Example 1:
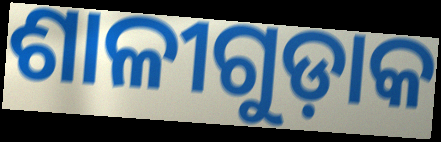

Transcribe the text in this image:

ଶାଳୀଗୁଡ଼ାକ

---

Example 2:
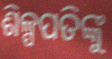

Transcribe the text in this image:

ଶିଳ୍ପପତିଙ୍କୁ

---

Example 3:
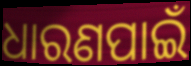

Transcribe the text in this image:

ଧାରଣପାଇଁ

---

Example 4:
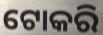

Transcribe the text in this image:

ଟୋକରି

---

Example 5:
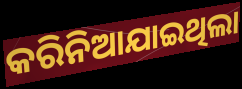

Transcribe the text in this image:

କରିନିଆଯାଇଥିଲା